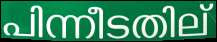
പിന്നീടതില്